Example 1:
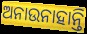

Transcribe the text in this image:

ଅନାଉନାହାନ୍ତି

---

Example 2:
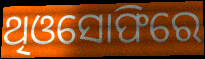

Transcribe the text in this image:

ଥିଓସୋଫିରେ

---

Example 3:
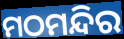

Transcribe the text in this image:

ମଠମନ୍ଦିର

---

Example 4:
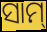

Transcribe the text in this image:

ସାମ୍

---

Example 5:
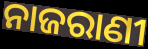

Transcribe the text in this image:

ନାଜରାଣୀ